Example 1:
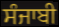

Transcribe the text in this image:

ਸੰਜਾਬੀ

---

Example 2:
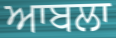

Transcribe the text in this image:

ਆਬਲਾ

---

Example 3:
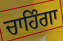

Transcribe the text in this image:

ਚਾਹਿੰਗਾ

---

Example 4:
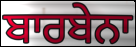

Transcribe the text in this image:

ਬਾਰਬੇਨਾ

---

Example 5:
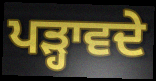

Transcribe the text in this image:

ਪੜ੍ਹਾਵਦੇ